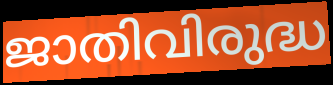
ജാതിവിരുദ്ധ